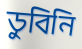
ডুবিনি